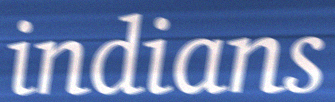
indians